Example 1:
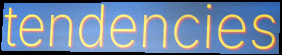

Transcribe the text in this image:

tendencies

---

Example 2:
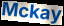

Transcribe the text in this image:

Mckay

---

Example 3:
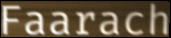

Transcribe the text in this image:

Faarach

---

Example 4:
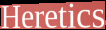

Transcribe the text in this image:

Heretics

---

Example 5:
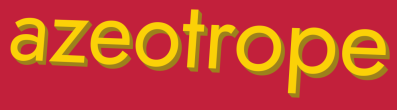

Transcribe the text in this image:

azeotrope